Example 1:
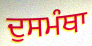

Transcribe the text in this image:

ਦੁਸਮੰਥਾ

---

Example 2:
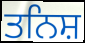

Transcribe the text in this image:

ਤਨਿਸ਼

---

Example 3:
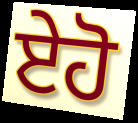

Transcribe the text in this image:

ਏਹੋ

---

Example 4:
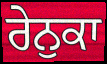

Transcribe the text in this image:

ਰੇਨੁਕਾ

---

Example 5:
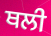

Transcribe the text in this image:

ਥਲੀ